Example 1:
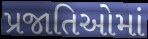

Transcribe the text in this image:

પ્રજાતિઓમાં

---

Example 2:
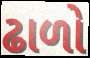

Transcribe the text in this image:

ઢાળો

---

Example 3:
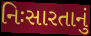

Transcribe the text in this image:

નિઃસારતાનું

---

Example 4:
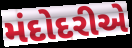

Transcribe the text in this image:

મંદોદરીએ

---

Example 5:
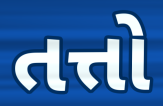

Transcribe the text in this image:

તત્તો